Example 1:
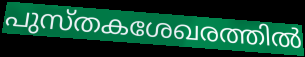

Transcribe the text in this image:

പുസ്തകശേഖരത്തിൽ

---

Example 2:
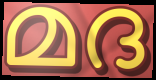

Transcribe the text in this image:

മദ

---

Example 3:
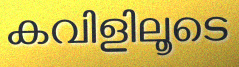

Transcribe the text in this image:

കവിളിലൂടെ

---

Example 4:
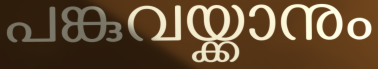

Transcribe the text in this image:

പങ്കുവയ്ക്കാനും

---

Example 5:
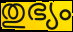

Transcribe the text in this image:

തുഭ്യം